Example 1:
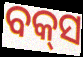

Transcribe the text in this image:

ବକ୍‌ସ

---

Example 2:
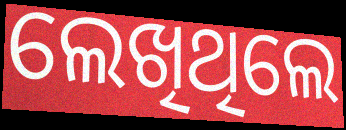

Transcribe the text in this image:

ଲେଖିଥିଲେ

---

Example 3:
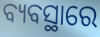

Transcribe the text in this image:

ବ୍ୟବସ୍ଥାରେ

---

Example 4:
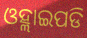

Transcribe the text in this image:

ଓହ୍ଲାଇପଡି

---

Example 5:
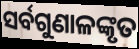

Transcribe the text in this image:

ସର୍ବଗୁଣାଳଙ୍କୃତ